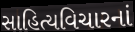
સાહિત્યવિચારનાં